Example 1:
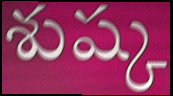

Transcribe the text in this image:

శుష్క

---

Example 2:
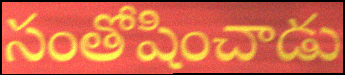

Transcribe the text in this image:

సంతోషించాడు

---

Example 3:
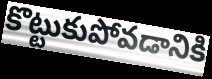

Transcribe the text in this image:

కొట్టుకుపోవడానికి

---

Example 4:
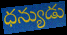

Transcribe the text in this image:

ధన్యుడు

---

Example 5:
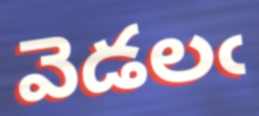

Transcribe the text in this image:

వెడలఁ